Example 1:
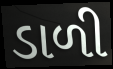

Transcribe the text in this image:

ડાળી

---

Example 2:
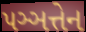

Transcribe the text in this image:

પઞ્ઞત્તેન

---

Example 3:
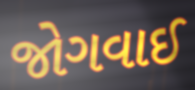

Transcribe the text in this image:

જોગવાઈ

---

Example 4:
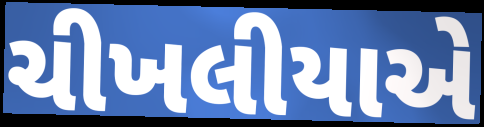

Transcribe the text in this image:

ચીખલીયાએ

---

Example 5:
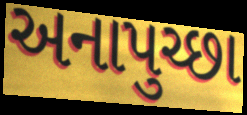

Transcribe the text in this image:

અનાપુચ્છા